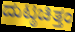
ದುಟ್ಠಚಿತ್ತಂ